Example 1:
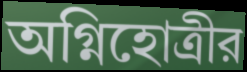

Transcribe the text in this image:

অগ্নিহোত্রীর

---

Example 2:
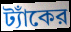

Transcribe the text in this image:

ট্যাঁকের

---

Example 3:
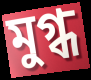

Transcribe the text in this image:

মুগ্ধ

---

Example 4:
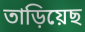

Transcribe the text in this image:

তাড়িয়েছ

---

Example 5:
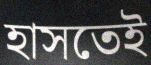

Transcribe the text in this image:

হাসতেই